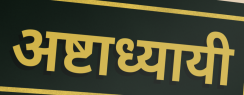
अष्टाध्यायी